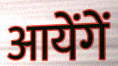
आयेंगें